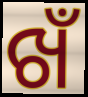
ଖଁ